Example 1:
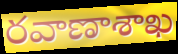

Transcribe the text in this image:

రవాణాశాఖ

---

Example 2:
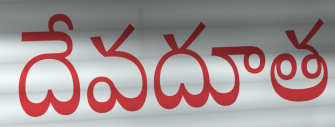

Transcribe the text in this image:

దేవదూత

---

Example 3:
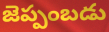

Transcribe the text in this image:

జెప్పంబడు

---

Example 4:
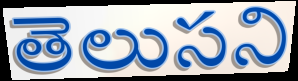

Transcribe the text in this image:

తెలుసని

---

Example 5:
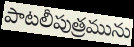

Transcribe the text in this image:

పాటలీపుత్రమును